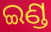
ଇଣ୍ଡ